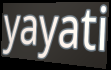
yayati